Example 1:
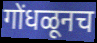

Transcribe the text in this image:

गोंधळूनच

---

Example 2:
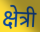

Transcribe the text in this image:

क्षेत्री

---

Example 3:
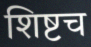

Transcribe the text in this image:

शिष्टच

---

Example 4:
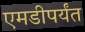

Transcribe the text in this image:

एमडीपर्यंत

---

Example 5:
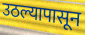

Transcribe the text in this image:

उठल्यापासून